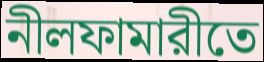
নীলফামারীতে